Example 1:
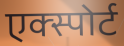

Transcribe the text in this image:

एक्‍स्पोर्ट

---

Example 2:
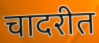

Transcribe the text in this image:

चादरीत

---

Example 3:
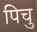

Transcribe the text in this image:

पिचु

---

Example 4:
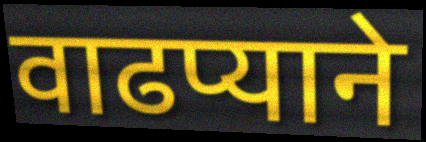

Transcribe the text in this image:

वाढप्याने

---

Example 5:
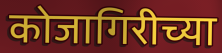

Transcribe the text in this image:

कोजागिरीच्या